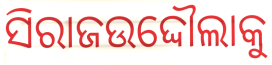
ସିରାଜଉଦ୍ଦୌଲାକୁ